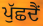
ਪੁੱਛਦੈਂ